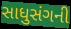
સાધુસંગની